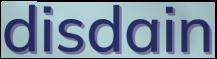
disdain